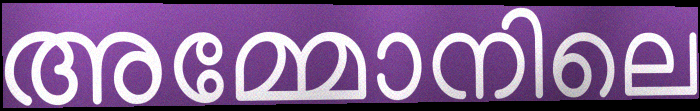
അമ്മോനിലെ